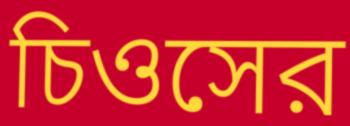
চিওসের